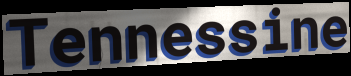
Tennessine